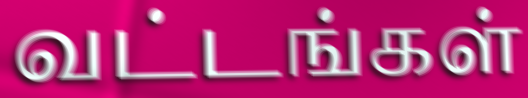
வட்டங்கள்